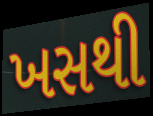
ખસથી